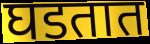
घडतात